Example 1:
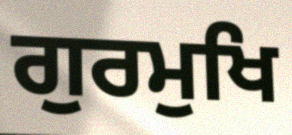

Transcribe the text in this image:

ਗੁਰਮੁਖਿ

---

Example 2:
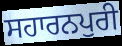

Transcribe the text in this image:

ਸਹਾਰਨਪੁਰੀ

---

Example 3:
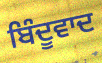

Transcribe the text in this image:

ਬਿੰਦੂਵਾਦ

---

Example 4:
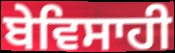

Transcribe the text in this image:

ਬੇਵਿਸਾਹੀ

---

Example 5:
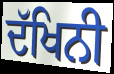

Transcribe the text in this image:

ਦੱਖਿਨੀ